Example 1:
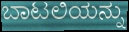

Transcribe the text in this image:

ಬಾಟಲಿಯನ್ನು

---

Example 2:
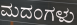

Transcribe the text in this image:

ಮದಂಗಳು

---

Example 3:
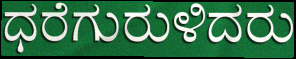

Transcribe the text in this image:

ಧರೆಗುರುಳಿದರು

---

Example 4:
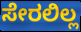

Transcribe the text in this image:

ಸೇರಲಿಲ್ಲ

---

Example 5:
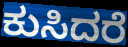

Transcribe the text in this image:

ಕುಸಿದರೆ